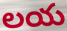
లయ